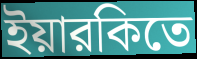
ইয়ারকিতে